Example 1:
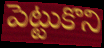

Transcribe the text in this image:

పెట్టుకొని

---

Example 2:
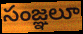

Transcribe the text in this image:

సంజ్ఞలూ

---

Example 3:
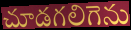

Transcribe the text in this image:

చూడగలిగెను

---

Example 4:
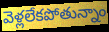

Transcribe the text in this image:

వెళ్లలేకపోతున్నాం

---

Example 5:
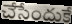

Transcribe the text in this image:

చేసేందుకే